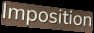
Imposition